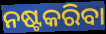
ନଷ୍ଟକରିବା